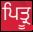
ਪਿਤ੍ਰੂ